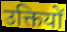
उक्तियों